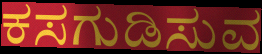
ಕಸಗುಡಿಸುವ